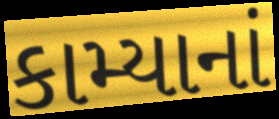
કામ્યાનાં